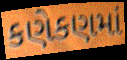
કણેકણમાં